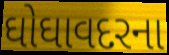
ઘોઘાવદરના